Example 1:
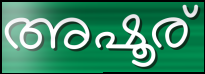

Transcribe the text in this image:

അഷൂര്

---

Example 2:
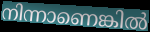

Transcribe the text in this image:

നിന്നാണെങ്കിൽ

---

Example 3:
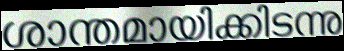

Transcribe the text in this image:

ശാന്തമായിക്കിടന്നു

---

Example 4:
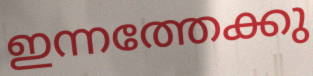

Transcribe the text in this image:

ഇന്നത്തേക്കു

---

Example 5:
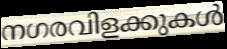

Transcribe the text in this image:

നഗരവിളക്കുകൾ